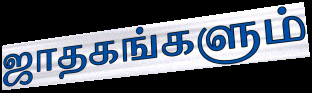
ஜாதகங்களும்